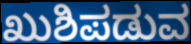
ಖುಶಿಪಡುವ